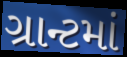
ગ્રાન્ટમાં